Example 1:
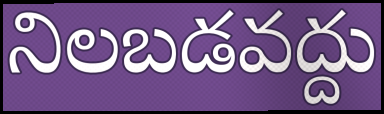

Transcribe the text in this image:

నిలబడవద్దు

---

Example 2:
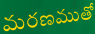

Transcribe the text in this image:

మరణముతో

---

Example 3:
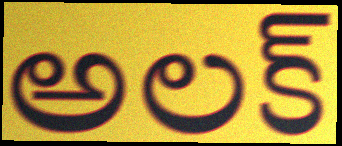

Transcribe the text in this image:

అలక్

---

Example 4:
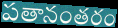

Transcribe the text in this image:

పతానంతరం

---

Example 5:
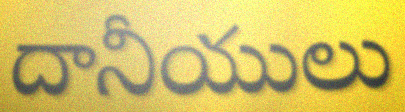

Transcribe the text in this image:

దానీయులు